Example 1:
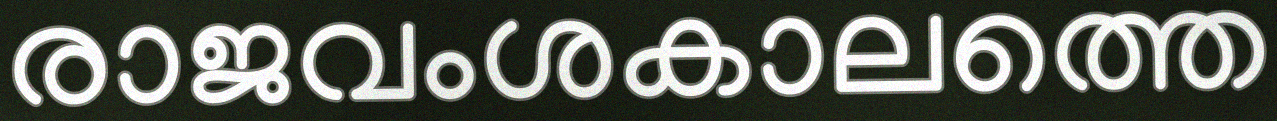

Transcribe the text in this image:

രാജവംശകാലത്തെ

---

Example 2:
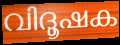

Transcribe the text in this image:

വിദൂഷക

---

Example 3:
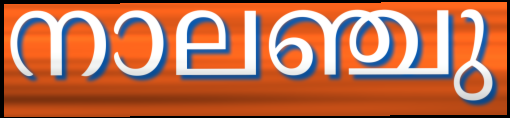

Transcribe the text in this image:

നാലഞ്ചു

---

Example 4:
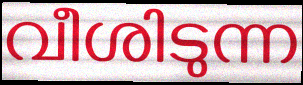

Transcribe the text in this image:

വീശിടുന്ന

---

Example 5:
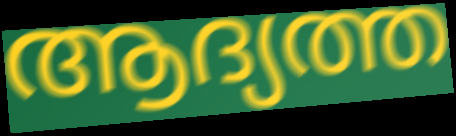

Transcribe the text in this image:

ആദ്യത്ത